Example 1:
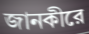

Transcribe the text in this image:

জানকীরে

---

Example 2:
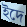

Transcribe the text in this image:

ইদে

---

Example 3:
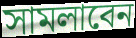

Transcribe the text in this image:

সামলাবেন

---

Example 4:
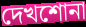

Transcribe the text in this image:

দেখশোনা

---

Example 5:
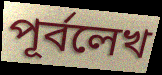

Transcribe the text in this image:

পূর্বলেখ